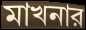
মাখনার